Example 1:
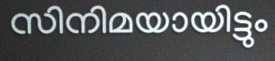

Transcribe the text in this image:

സിനിമയായിട്ടും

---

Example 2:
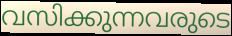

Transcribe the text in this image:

വസിക്കുന്നവരുടെ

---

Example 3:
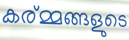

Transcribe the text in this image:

കര്മ്മങ്ങളുടെ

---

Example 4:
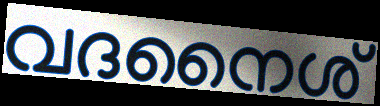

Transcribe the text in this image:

വദനൈശ്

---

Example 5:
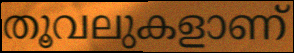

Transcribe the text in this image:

തൂവലുകളാണ്